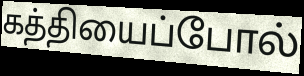
கத்தியைப்போல்